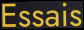
Essais